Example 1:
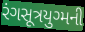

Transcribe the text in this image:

રંગસૂત્રયુગ્મની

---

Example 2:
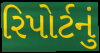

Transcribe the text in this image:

રિપોર્ટનું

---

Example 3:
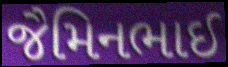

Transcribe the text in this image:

જૈમિનભાઈ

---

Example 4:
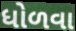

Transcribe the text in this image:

ધોળવા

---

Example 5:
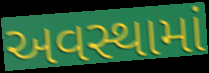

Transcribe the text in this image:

અવસ્થામાં